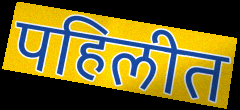
पहिलीत